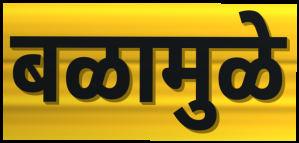
बळामुळे